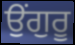
ਉਂਗੁਰੂ